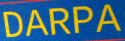
DARPA